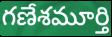
గణేశమూర్తి